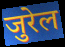
जुरेल